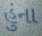
હુંના